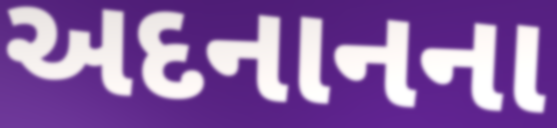
અદનાનના